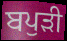
ਬਪੁੜੀ